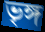
ভৃঙ্গ